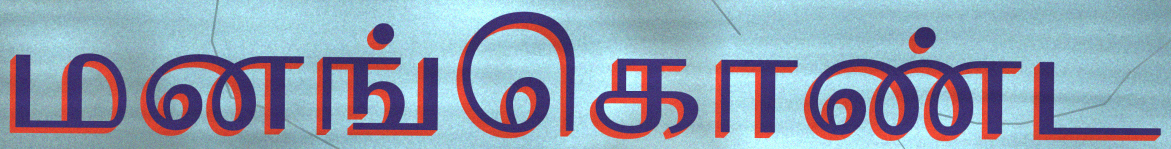
மனங்கொண்ட